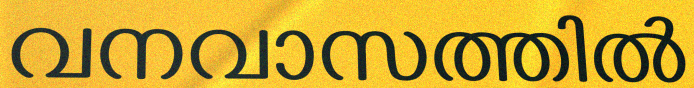
വനവാസത്തിൽ